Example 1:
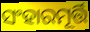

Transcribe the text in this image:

ସଂହାରମୂର୍ତ୍ତି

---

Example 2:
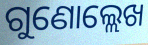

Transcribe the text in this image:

ଗୁଣୋଲ୍ଲେଖ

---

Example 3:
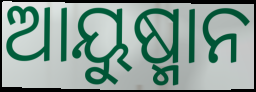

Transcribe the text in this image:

ଆୟୁଷ୍ମାନ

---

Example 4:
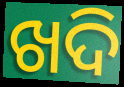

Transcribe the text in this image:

ଖଦି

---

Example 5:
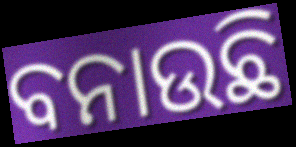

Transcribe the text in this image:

ବନାଉଛି